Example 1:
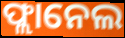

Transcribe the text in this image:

ଫ୍ଲାନେଲ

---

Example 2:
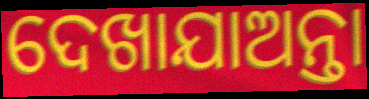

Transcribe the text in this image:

ଦେଖାଯାଅନ୍ତା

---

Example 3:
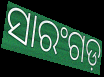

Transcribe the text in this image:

ସାରଂଗଡ଼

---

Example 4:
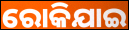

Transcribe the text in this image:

ରୋକିଯାଇ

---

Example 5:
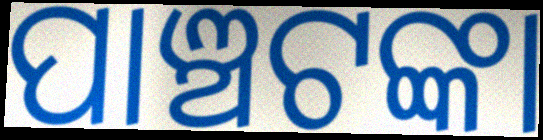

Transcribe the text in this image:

ପାଞ୍ଚଟଙ୍କା